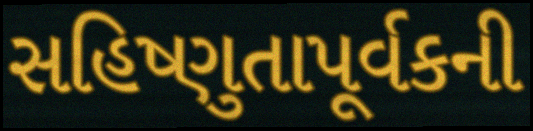
સહિષ્ણુતાપૂર્વકની